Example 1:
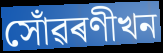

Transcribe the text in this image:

সোঁৱৰণীখন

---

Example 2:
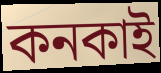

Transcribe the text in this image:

কনকাই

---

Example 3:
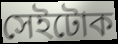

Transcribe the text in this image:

সেইটোক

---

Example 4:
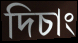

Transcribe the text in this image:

দিচাং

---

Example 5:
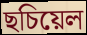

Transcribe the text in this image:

ছচিয়েল